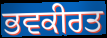
ਭਵਕੀਰਤ